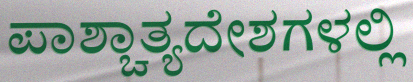
ಪಾಶ್ಚಾತ್ಯದೇಶಗಳಲ್ಲಿ